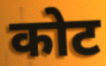
कोट